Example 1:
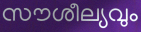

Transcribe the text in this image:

സൗശീല്യവും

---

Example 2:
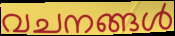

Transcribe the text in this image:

വചനങ്ങൾ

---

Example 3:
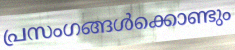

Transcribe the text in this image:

പ്രസംഗങ്ങൾക്കൊണ്ടും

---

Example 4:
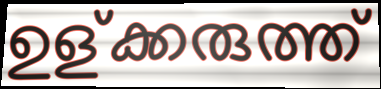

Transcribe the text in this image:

ഉള്ക്കരുത്ത്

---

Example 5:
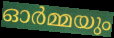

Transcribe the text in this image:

ഓർമ്മയും